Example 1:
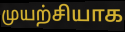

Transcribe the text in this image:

முயற்சியாக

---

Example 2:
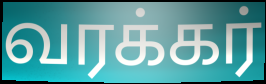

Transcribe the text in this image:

வரக்கர்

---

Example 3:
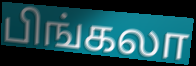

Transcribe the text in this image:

பிங்கலா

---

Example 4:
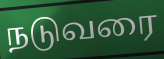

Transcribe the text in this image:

நடுவரை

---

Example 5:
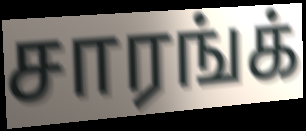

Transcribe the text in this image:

சாரங்க்